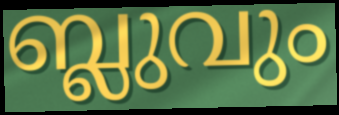
ബ്ലുവും